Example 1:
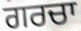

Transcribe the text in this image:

ਗਰਚਾ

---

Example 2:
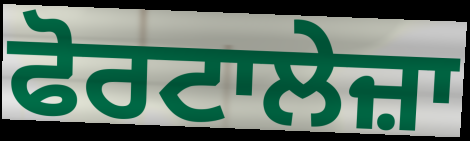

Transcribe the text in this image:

ਫੋਰਟਾਲੇਜ਼ਾ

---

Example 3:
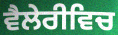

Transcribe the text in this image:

ਵੈਲੇਰੀਵਿਚ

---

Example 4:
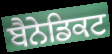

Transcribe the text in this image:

ਬੈਨੇਡਿਕਟ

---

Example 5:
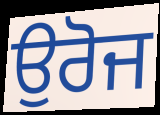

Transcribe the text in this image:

ਉਰੋਜ